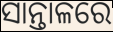
ସାନ୍ତାଳରେ